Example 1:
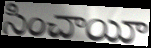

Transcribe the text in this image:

సించాయీ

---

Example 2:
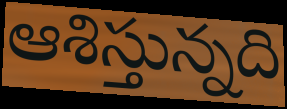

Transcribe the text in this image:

ఆశిస్తున్నది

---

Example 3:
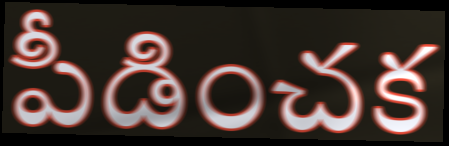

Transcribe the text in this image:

పీడించక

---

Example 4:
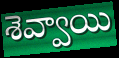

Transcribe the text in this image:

శెవ్వాయి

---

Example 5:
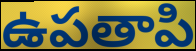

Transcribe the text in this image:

ఉపతాపి